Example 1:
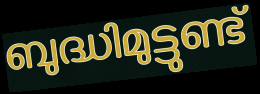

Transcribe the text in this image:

ബുദ്ധിമുട്ടുണ്ട്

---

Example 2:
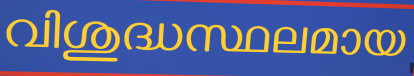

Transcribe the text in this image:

വിശുദ്ധസ്ഥലമായ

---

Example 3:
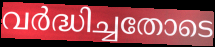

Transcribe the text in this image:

വർദ്ധിച്ചതോടെ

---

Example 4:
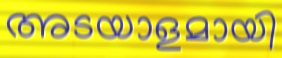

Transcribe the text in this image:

അടയാളമായി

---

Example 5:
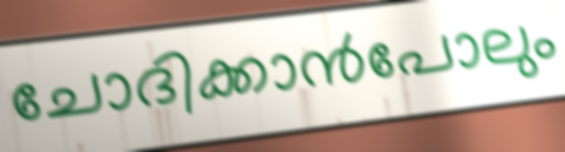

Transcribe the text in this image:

ചോദിക്കാൻപോലും